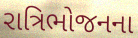
રાત્રિભોજનના